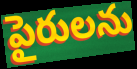
పైరులను